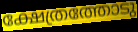
ക്ഷേത്രത്തോടു